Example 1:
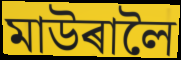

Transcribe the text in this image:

মাউৰালৈ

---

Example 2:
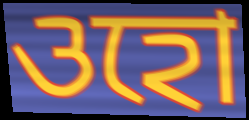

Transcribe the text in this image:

ওহো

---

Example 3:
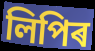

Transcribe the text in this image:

লিপিৰ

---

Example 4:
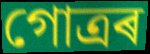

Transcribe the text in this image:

গোত্ৰৰ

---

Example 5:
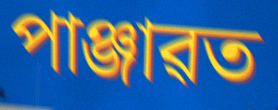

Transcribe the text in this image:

পাঞ্জাৱত